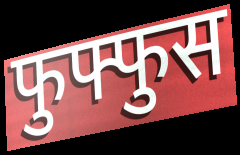
फुफ्फुस